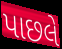
પાછલે